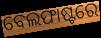
ବେଲଫାଷ୍ଟରେ